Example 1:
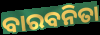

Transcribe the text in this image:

ବାରବନିତା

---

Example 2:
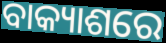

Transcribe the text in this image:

ବାକ୍ୟାଶରେ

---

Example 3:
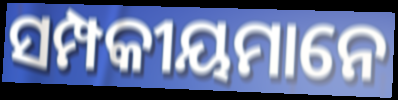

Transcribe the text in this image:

ସମ୍ପକୀୟମାନେ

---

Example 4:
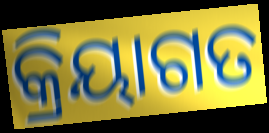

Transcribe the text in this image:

କ୍ରିୟାଗତ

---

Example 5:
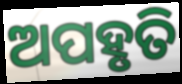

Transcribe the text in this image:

ଅପହୃତି